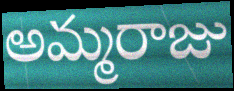
అమ్మరాజు